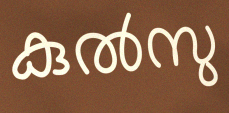
കുൽസു